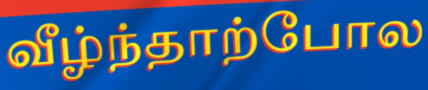
வீழ்ந்தாற்போல